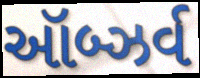
ઑબ્ઝર્વ